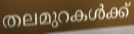
തലമുറകൾക്ക്